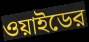
ওয়াইডের